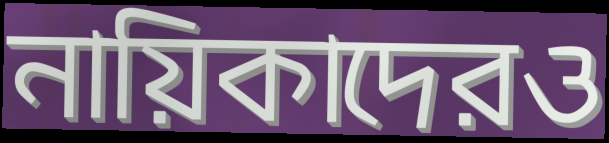
নায়িকাদেরও